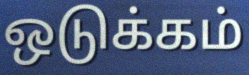
ஒடுக்கம்